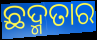
ଛଦ୍ମତାର